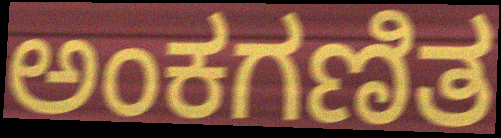
ಅಂಕಗಣಿತ